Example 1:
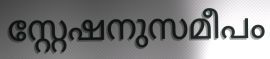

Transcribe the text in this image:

സ്റ്റേഷനുസമീപം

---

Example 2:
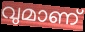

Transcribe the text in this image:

വുമാണ്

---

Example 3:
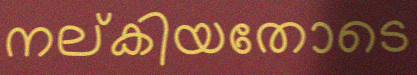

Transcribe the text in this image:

നല്കിയതോടെ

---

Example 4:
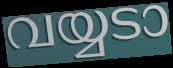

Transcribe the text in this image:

വയ്യടാ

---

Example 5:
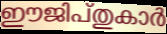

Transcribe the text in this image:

ഈജിപ്തുകാർ